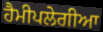
ਹੈਮੀਪਲੇਗੀਆ